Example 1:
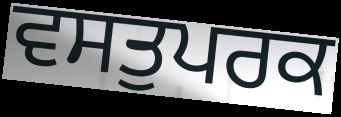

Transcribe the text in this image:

ਵਸਤੁਪਰਕ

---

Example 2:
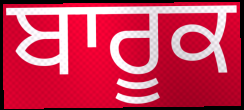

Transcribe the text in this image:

ਬਾਰੂਕ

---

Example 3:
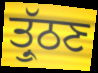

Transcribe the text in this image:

ਤ੍ਰੁੱਠਣ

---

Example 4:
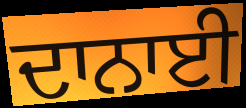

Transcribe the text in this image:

ਦਾਨਾਈ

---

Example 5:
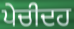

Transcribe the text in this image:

ਪੇਚੀਦਹ